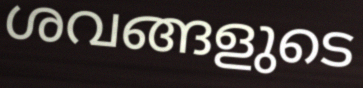
ശവങ്ങളുടെ